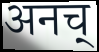
अनच्